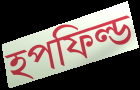
হপফিল্ড